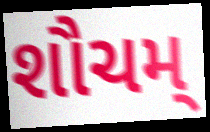
શૌચમ્